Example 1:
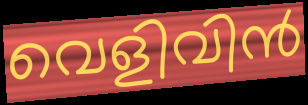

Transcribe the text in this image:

വെളിവിൻ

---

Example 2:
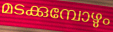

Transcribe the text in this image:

മടക്കുമ്പോഴും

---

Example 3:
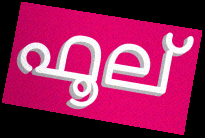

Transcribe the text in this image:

ഫൂല്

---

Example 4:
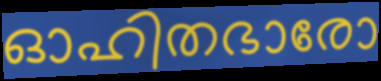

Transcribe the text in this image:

ഓഹിതഭാരോ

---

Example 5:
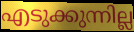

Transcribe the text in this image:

എടുക്കുന്നില്ല